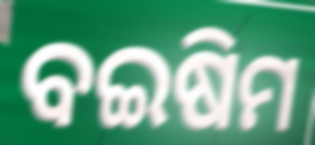
ବଇଷିମ